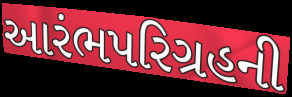
આરંભપરિગ્રહની